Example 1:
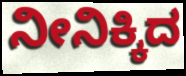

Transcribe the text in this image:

ನೀನಿಕ್ಕಿದ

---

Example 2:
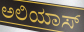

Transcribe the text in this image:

ಅಲಿಯಾಸ್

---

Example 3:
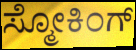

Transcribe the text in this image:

ಸ್ಮೋಕಿಂಗ್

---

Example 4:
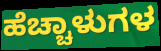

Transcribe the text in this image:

ಹೆಚ್ಚಾಳುಗಳ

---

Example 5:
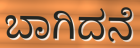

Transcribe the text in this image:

ಬಾಗಿದನೆ